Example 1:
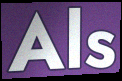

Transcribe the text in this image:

Als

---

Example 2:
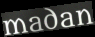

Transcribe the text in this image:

madan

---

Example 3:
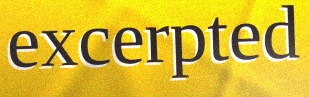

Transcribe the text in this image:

excerpted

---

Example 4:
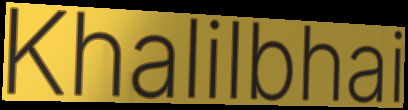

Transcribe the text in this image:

Khalilbhai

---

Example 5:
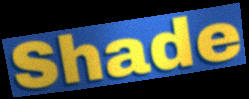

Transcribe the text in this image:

Shade